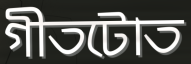
গীতটোত